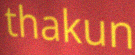
thakun